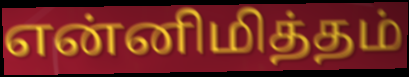
என்னிமித்தம்